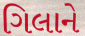
ગિલાને